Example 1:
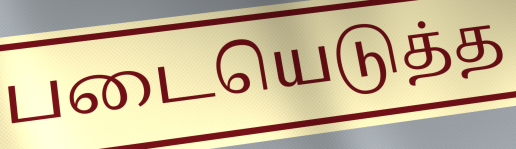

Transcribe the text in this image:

படையெடுத்த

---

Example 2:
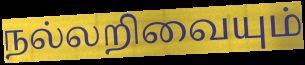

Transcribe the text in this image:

நல்லறிவையும்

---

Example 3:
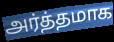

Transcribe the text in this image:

அர்த்தமாக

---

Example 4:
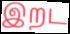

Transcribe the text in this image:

இறட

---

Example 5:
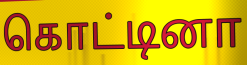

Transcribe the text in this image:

கொட்டினா